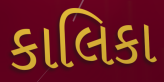
કાલિકા